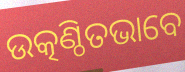
ଉତ୍କଣ୍ଠିତଭାବେ